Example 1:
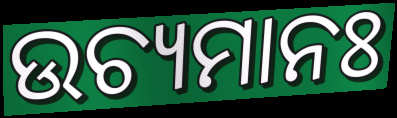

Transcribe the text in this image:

ଉଚ୍ୟମାନଃ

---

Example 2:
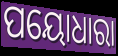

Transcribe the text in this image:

ପୟୋଧାରା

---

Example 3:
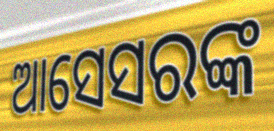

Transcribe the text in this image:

ଆସେସରଙ୍କ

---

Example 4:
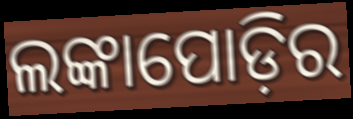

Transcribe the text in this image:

ଲଙ୍କାପୋଡ଼ିର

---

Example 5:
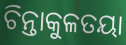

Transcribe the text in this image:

ଚିନ୍ତାକୁଳତୟା